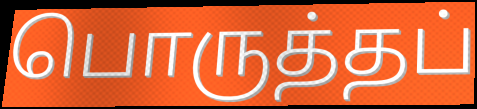
பொருத்தப்